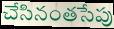
చేసినంతసేపు